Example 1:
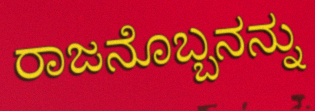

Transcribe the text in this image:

ರಾಜನೊಬ್ಬನನ್ನು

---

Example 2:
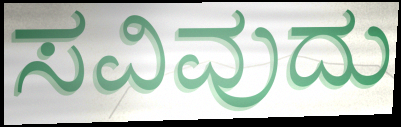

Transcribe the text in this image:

ಸವಿವುದು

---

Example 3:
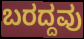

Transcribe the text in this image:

ಬರದ್ದವು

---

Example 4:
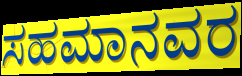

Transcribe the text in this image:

ಸಹಮಾನವರ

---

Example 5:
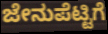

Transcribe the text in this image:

ಜೇನುಪೆಟ್ಟಿಗೆ